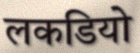
लकडियो